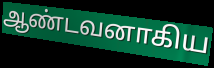
ஆண்டவனாகிய